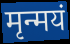
मृन्मयं